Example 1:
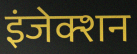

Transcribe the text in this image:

इंजेक्शन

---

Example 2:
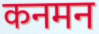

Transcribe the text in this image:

कनमन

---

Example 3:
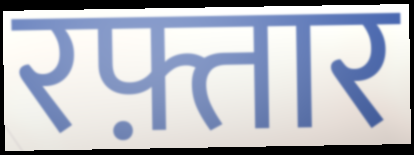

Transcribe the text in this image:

रफ़्तार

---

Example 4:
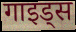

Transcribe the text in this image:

गाइड्स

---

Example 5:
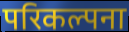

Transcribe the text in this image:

परिकल्पना